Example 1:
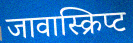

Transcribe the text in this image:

जावास्क्रिप्ट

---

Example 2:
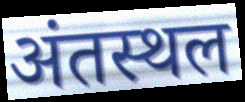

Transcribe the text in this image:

अंतस्थल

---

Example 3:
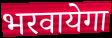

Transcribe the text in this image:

भरवायेगा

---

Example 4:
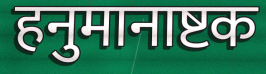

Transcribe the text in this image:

हनुमानाष्टक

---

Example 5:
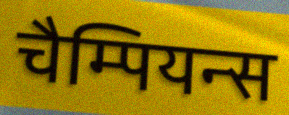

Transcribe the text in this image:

चैम्पियन्स